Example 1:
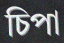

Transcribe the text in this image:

চিপা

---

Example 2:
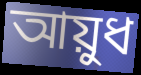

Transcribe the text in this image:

আয়ুধ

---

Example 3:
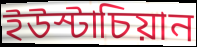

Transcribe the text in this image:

ইউস্টাচিয়ান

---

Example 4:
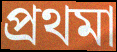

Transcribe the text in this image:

প্রথমা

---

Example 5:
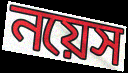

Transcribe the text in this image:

নয়েস